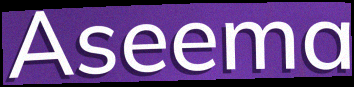
Aseema